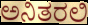
ಅನಿತರಲಿ